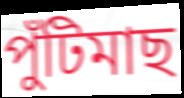
পুঁটিমাছ